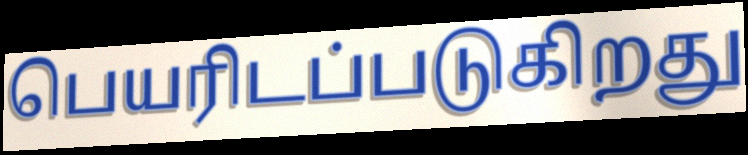
பெயரிடப்படுகிறது